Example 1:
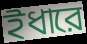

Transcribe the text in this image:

ইধারে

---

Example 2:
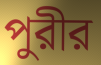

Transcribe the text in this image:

পুরীর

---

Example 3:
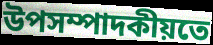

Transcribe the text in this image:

উপসম্পাদকীয়তে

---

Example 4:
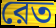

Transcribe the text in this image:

রেত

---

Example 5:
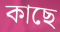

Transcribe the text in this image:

কাছে